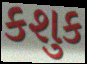
કશુક